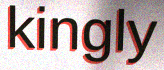
kingly